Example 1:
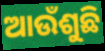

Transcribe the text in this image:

ଆଉଁଶୁଛି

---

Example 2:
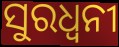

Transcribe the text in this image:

ସୁରଧ୍ୱନୀ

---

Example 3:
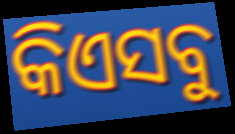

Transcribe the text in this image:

କିଏସବୁ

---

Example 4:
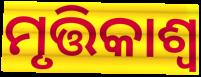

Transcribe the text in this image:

ମୃତ୍ତିକାଶ୍ୱ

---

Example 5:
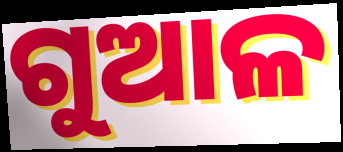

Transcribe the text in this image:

ଗୁଆଳ